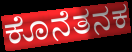
ಕೊನೆತನಕ